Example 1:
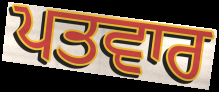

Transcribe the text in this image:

ਪਤਵਾਰ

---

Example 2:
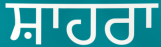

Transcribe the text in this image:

ਸ਼ਾਹਰਾ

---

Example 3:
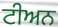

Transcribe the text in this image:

ਟੀਅਨ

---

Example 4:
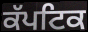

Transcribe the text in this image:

ਕੱਪਟਿਕ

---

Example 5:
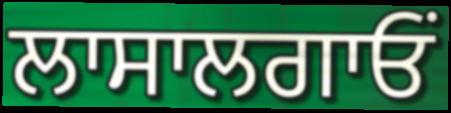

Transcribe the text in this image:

ਲਾਸਾਲਗਾਓਂ